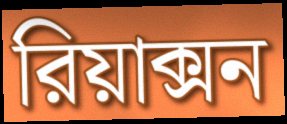
রিয়াক্সন